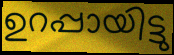
ഉറപ്പായിട്ടു